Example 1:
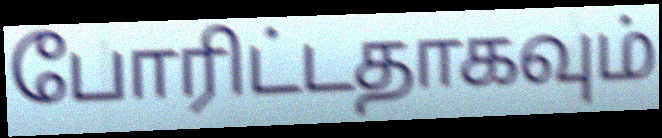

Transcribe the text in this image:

போரிட்டதாகவும்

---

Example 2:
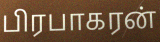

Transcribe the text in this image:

பிரபாகரன்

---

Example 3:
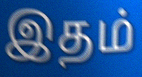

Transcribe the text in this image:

இதம்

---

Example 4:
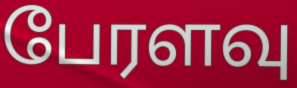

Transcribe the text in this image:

பேரளவு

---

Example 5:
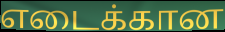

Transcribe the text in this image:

எடைக்கான